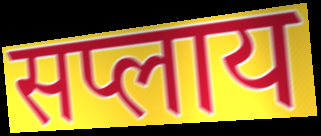
सप्लाय